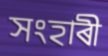
সংহাৰী